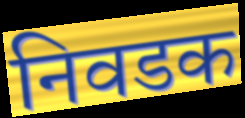
निवडक